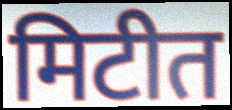
मिटीत